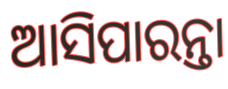
ଆସିପାରନ୍ତା